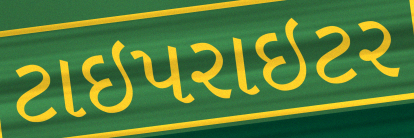
ટાઇપરાઇટર